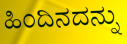
ಹಿಂದಿನದನ್ನು